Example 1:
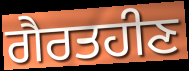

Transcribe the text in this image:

ਗੈਰਤਹੀਣ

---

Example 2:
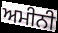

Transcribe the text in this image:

ਅਮੀਨੀ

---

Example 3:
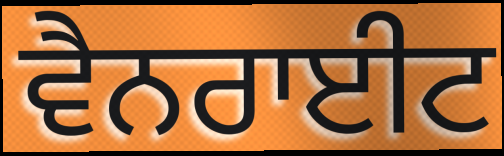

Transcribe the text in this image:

ਵੈਨਰਾਈਟ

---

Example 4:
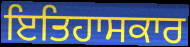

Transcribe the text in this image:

ਇਤਿਹਾਸਕਾਰ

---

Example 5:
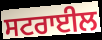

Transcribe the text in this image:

ਸਟਰਾਈਲ